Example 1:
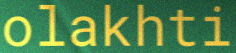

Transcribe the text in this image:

olakhti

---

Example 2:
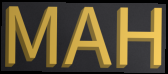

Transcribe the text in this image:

MAH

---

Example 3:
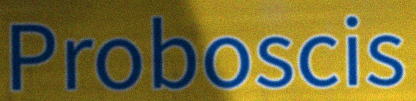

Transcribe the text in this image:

Proboscis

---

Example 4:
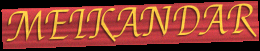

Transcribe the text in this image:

MEIKANDAR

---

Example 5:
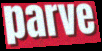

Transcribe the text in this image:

parve